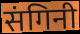
संगिनी